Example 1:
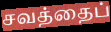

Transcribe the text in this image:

சவத்தைப்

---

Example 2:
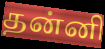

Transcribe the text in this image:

தன்னி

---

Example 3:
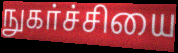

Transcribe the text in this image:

நுகர்ச்சியை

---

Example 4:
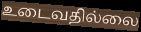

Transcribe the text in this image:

உடைவதில்லை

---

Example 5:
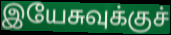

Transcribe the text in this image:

இயேசுவுக்குச்